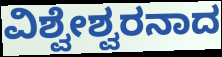
ವಿಶ್ವೇಶ್ವರನಾದ